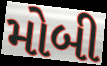
મોબી